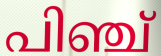
പിഞ്ച്